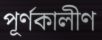
পূর্ণকালীণ